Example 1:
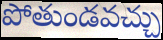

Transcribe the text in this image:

పోతుండవచ్చు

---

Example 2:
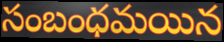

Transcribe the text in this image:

సంబంధమయిన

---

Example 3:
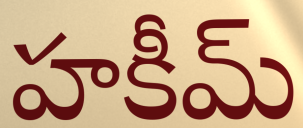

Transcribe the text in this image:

హకీమ్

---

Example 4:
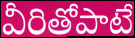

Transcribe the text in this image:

వీరితోపాటే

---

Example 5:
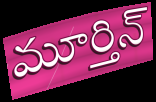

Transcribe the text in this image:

మూర్తిన్